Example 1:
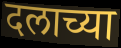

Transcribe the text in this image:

दलाच्या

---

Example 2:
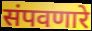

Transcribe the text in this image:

संपवणारे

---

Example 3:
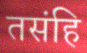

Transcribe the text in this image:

तसंहि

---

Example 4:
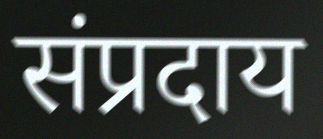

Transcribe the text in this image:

संप्रदाय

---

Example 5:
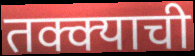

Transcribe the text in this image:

तक्क्याची